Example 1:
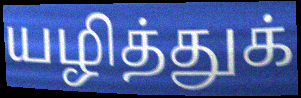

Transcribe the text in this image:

யழித்துக்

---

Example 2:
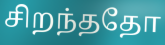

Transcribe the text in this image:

சிறந்ததோ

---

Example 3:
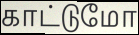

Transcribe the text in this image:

காட்டுமோ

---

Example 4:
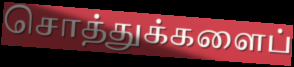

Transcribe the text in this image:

சொத்துக்களைப்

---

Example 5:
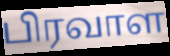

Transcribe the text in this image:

பிரவாள